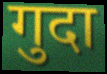
गुदा